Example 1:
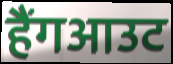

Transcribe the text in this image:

हैंगआउट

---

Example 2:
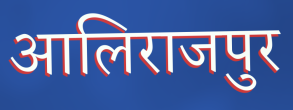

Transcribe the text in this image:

आलिराजपुर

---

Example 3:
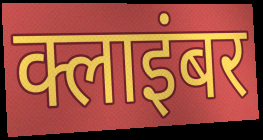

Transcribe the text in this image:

क्लाइंबर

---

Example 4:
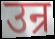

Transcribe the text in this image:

उन्र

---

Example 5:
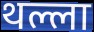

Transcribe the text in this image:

थल्ला